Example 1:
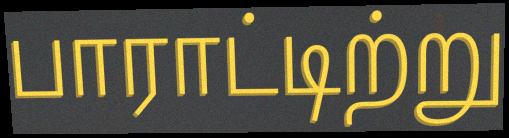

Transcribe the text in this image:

பாராட்டிற்று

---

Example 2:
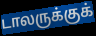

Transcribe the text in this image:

டாலருக்குக்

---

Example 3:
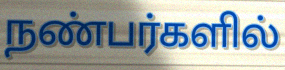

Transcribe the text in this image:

நண்பர்களில்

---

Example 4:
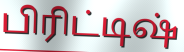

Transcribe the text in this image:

பிரிட்டிஷ்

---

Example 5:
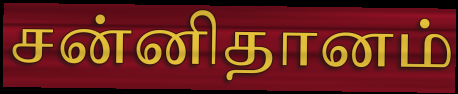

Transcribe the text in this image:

சன்னிதானம்